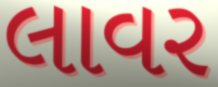
લાવર